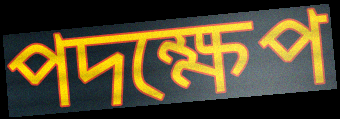
পদক্ষেপ